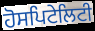
ਹੋਸਪਿਟੇਲਿਟੀ